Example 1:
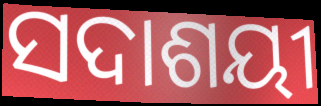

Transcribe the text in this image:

ସଦାଶୟୀ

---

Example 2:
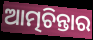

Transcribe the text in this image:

ଆତ୍ମଚିନ୍ତାର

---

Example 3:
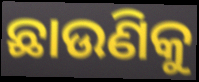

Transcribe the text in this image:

ଛାଉଣିକୁ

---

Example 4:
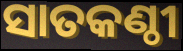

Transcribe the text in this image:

ସାତକଣ୍ଠୀ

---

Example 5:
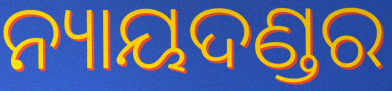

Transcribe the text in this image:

ନ୍ୟାୟଦଣ୍ଡର